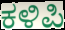
ಕಳಿಪಿ